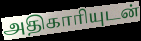
அதிகாரியுடன்